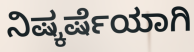
ನಿಷ್ಕರ್ಷೆಯಾಗಿ